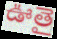
ఊతై